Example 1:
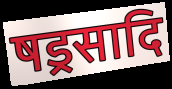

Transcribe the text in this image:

षड्रसादि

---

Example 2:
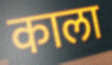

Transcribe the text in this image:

काला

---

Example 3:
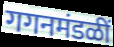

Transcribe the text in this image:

गगनमंडळीं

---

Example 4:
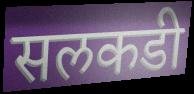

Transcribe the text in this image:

सलकडी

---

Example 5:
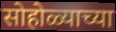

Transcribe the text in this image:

सोहोळ्याच्या